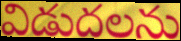
విడుదలను